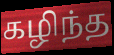
கழிந்த